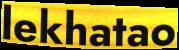
lekhatao